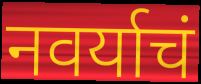
नवर्याचं